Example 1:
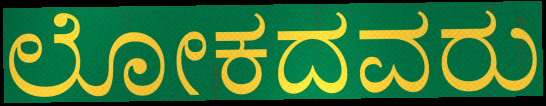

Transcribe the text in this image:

ಲೋಕದವರು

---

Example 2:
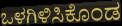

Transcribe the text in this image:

ಒಳಗಿಳಿಸಿಕೊಂಡ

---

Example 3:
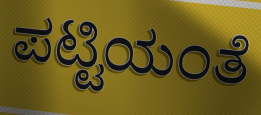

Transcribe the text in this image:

ಪಟ್ಟಿಯಂತೆ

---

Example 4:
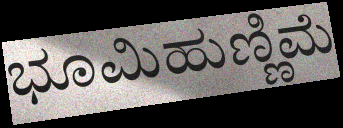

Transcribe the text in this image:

ಭೂಮಿಹುಣ್ಣಿಮೆ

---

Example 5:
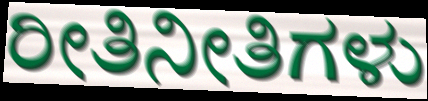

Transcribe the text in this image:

ರೀತಿನೀತಿಗಳು